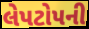
લેપટોપની